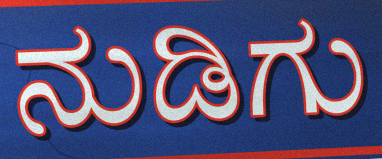
ನುಡಿಗು